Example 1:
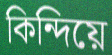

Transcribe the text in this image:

কিন্দিয়ে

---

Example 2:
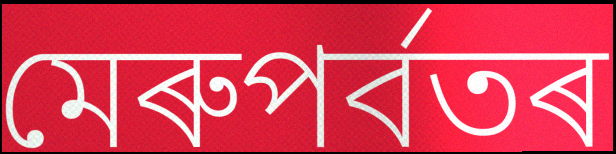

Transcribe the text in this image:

মেৰুপৰ্বতৰ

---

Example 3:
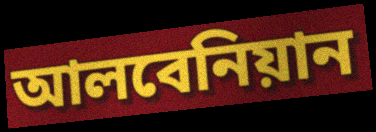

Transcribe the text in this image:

আলবেনিয়ান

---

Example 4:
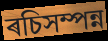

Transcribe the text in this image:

ৰচিসম্পন্ন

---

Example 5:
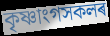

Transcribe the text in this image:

কৃষ্ণাংগসকলৰ